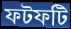
ফটফটি